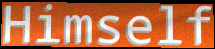
Himself